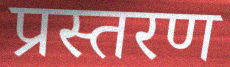
प्रस्तरण